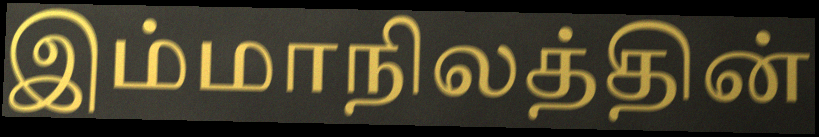
இம்மாநிலத்தின்